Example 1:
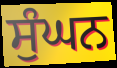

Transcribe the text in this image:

ਸੁੰਘਨ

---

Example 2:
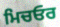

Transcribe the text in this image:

ਮਿਚਓਰ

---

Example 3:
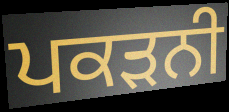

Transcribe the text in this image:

ਪਕੜਨੀ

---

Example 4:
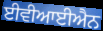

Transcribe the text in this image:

ਈਵੀਆਈਐਨ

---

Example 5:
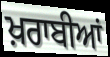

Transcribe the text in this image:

ਖ਼ਰਾਬੀਆਂ